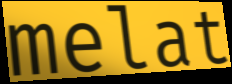
melat